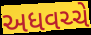
અધવચ્ચે